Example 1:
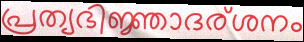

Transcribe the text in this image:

പ്രത്യഭിജ്ഞാദര്ശനം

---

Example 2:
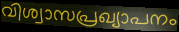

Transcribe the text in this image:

വിശ്വാസപ്രഖ്യാപനം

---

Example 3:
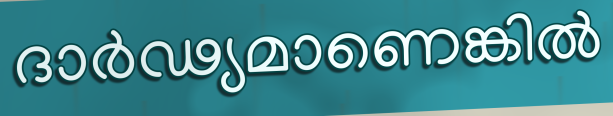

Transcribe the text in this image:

ദാർഢ്യമാണെങ്കിൽ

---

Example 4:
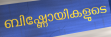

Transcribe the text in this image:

ബിഷ്ണോയികളുടെ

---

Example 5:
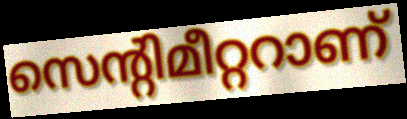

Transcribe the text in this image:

സെന്റിമീറ്ററാണ്